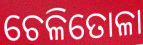
ଚେଳିତୋଳା